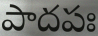
పాదపః